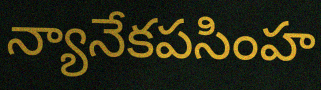
న్యానేకపసింహ